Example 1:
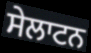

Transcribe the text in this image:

ਸੇਲਾਟਨ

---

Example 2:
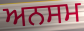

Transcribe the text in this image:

ਅਨਸਮ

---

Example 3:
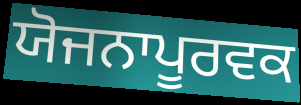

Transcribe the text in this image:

ਯੋਜਨਾਪੂਰਵਕ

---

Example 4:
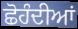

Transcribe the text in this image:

ਛੋਹੰਦੀਆਂ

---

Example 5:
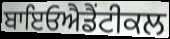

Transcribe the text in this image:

ਬਾਇਓਐਡੈਂਟੀਕਲ